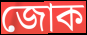
জোক